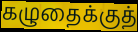
கழுதைக்குத்